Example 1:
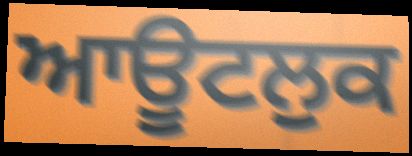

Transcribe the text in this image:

ਆਊਟਲੁਕ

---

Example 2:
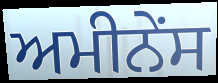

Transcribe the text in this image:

ਅਮੀਨੇਂਸ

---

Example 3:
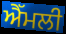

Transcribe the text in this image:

ਐੱਮਲੀ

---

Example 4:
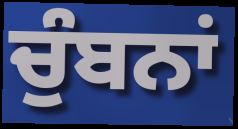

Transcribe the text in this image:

ਚੁੰਬਨਾਂ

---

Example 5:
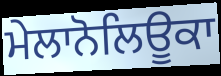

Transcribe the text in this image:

ਮੇਲਾਨੋਲਿਊਕਾ